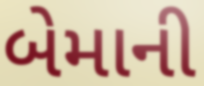
બેમાની